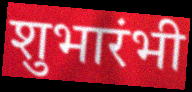
शुभारंभी